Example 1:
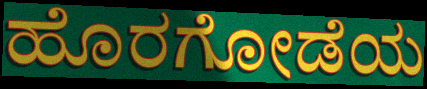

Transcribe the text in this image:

ಹೊರಗೋಡೆಯ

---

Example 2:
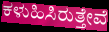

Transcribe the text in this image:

ಕಳುಹಿಸಿರುತ್ತೇವೆ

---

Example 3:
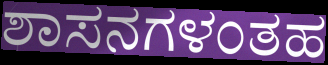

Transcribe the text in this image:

ಶಾಸನಗಳಂತಹ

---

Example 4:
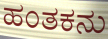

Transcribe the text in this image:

ಹಂತಕನು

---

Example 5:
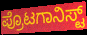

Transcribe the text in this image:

ಪ್ರೊಟಗಾನಿಸ್ಟ್